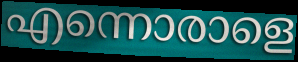
എന്നൊരാളെ